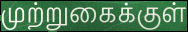
முற்றுகைக்குள்